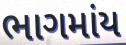
ભાગમાંય